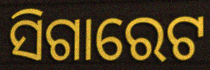
ସିଗାରେଟ